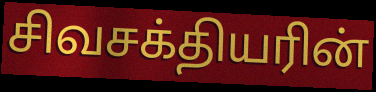
சிவசக்தியரின்